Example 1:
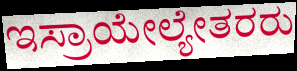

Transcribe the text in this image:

ಇಸ್ರಾಯೇಲ್ಯೇತರರು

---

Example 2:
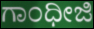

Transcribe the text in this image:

ಗಾಂಧೀಜಿ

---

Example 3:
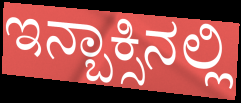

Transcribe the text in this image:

ಇನ್ಬಾಕ್ಸಿನಲ್ಲಿ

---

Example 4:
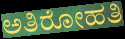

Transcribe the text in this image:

ಅತಿರೋಹತಿ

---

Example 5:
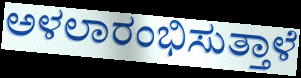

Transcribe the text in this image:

ಅಳಲಾರಂಭಿಸುತ್ತಾಳೆ